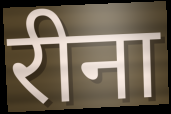
रीना